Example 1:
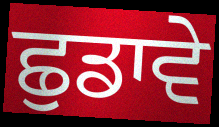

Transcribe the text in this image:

ਛੁਡਾਵੇ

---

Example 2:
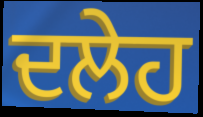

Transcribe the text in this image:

ਦਲੇਹ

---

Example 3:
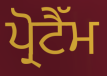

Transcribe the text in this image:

ਪ੍ਰੋਟੈੱਮ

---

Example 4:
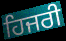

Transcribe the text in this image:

ਹਿਜਰੀ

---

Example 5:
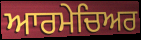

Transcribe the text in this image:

ਆਰਮੇਚਿਅਰ